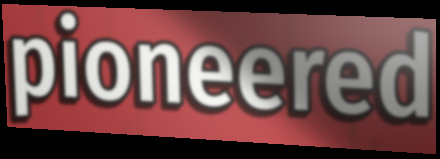
pioneered